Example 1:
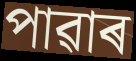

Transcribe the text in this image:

পাৱাৰ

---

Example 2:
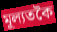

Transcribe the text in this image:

মূল্যতকৈ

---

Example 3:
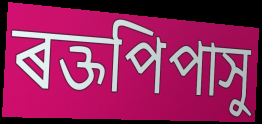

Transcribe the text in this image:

ৰক্তপিপাসু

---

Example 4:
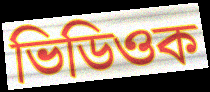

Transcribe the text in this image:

ভিডিওক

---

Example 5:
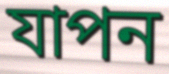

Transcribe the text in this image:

যাপন